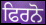
ਫਿਰਨੋ